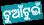
ଟୁଆଁଟୁଇଁ